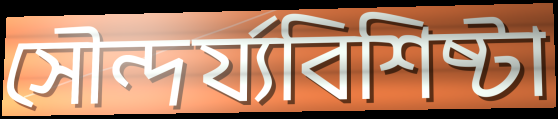
সৌন্দর্য্যবিশিষ্টা